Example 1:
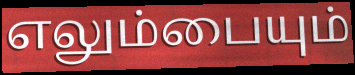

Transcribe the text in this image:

எலும்பையும்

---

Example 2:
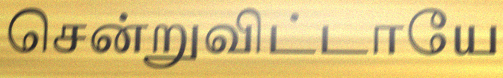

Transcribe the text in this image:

சென்றுவிட்டாயே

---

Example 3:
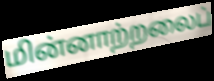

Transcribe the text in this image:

மின்னாற்றலைப்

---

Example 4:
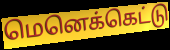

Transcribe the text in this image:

மெனெக்கெட்டு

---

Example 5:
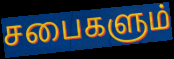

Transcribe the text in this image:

சபைகளும்